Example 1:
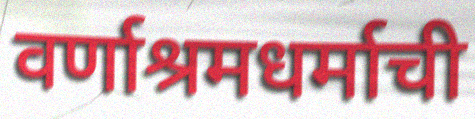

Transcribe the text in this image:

वर्णाश्रमधर्माची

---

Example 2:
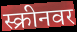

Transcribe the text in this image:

स्क्रीनवर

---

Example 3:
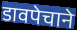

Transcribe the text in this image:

डावपेचाने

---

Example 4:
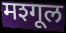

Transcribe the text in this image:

मश्गूल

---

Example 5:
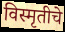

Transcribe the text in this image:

विस्मृतीचे